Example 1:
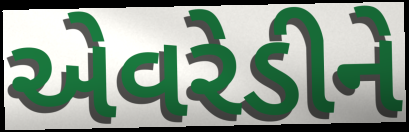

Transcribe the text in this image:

એવરેડીને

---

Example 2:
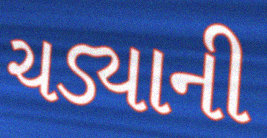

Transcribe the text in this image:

ચડ્યાની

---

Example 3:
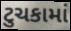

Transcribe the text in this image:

ટુચકામાં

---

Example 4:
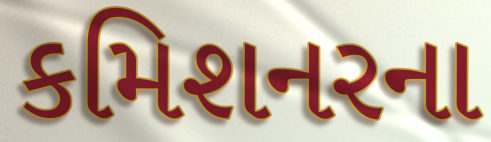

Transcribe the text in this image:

કમિશનરના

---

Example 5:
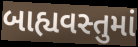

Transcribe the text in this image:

બાહ્યવસ્તુમાં